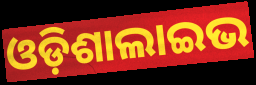
ଓଡ଼ିଶାଲାଇଭ